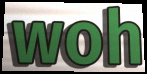
woh